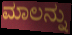
ಮಾಲನ್ನು